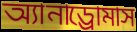
অ্যানাড্রোমাস